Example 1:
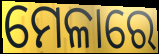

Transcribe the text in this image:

ମେଳାରେ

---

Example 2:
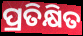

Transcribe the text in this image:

ପ୍ରତିକ୍ଷିତ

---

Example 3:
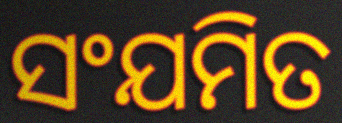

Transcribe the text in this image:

ସଂଯମିତ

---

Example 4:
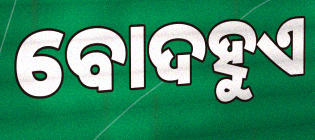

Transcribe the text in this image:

ବୋଦହୁଏ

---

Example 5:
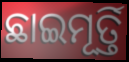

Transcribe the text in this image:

ଛାଇମୂର୍ତ୍ତି